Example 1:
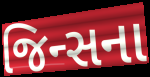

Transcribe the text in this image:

જિન્સના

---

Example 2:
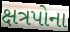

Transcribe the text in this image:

ક્ષત્રપોના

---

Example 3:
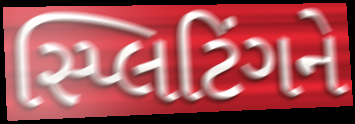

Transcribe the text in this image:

સ્પ્લિટિંગને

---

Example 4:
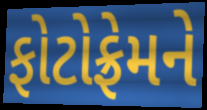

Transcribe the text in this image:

ફોટોફ્રેમને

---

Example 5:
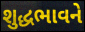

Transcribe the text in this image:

શુદ્ધભાવને